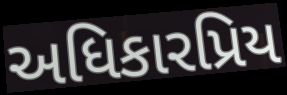
અધિકારપ્રિય